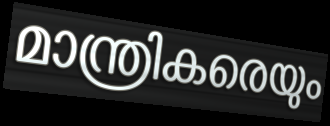
മാന്ത്രികരെയും